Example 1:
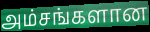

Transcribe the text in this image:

அம்சங்களான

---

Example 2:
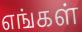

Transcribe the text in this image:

எங்கள்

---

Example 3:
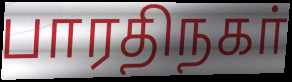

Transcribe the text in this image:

பாரதிநகர்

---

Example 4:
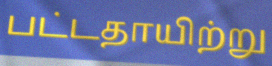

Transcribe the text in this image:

பட்டதாயிற்று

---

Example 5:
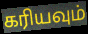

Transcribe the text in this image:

கரியவும்